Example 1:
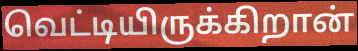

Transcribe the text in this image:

வெட்டியிருக்கிறான்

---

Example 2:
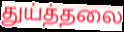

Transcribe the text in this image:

துய்த்தலை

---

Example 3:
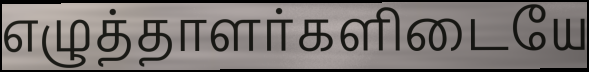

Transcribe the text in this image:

எழுத்தாளர்களிடையே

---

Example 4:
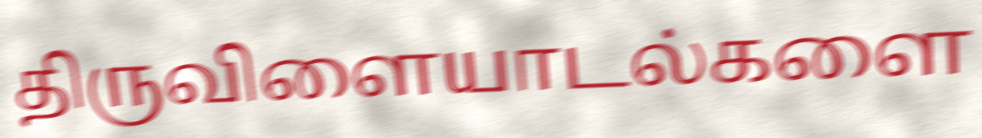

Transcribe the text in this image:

திருவிளையாடல்களை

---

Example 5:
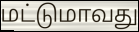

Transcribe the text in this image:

மட்டுமாவது